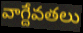
వాగ్దేవతలు